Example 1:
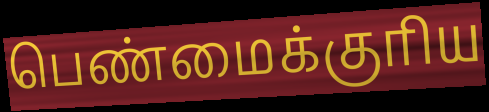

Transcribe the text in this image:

பெண்மைக்குரிய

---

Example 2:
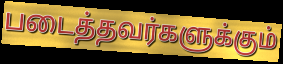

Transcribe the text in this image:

படைத்தவர்களுக்கும்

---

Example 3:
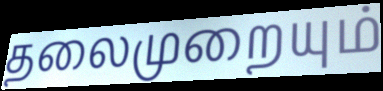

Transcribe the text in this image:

தலைமுறையும்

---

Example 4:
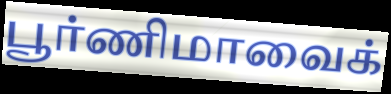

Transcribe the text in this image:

பூர்ணிமாவைக்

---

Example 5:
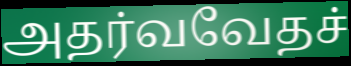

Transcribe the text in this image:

அதர்வவேதச்